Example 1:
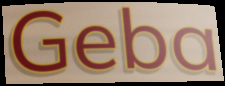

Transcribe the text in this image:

Geba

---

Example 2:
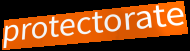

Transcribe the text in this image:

protectorate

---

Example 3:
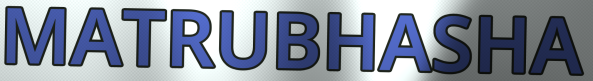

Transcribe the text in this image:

MATRUBHASHA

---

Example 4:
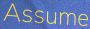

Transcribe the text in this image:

Assume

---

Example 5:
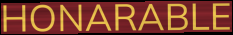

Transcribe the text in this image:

HONARABLE